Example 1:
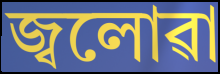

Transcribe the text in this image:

জ্বলোৱা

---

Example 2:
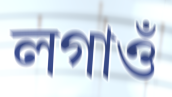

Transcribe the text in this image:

লগাওঁ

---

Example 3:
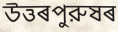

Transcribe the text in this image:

উত্তৰপুৰুষৰ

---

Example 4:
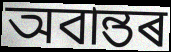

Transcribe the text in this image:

অবান্তৰ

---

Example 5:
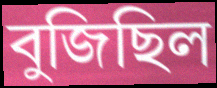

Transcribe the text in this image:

বুজিছিল